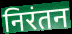
निरंतन